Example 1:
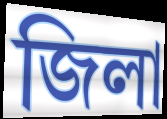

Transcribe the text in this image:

জিলা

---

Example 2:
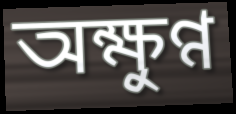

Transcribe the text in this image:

অক্ষুণ্ণ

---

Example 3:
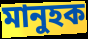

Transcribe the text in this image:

মানুহক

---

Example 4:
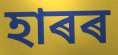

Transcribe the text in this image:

হাৰৰ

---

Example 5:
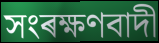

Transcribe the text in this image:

সংৰক্ষণবাদী